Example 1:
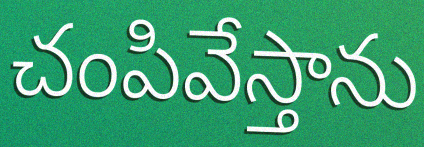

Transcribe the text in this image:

చంపివేస్తాను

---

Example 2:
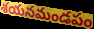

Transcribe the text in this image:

శయనమండపం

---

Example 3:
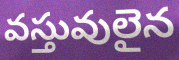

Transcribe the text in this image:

వస్తువులైన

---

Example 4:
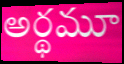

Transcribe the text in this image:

అర్థమూ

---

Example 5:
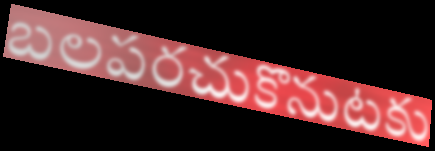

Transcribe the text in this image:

బలపరచుకొనుటకు